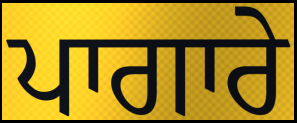
ਪਾਗਾਰੇ